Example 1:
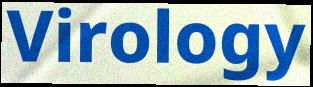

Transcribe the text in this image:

Virology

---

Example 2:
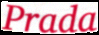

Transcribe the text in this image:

Prada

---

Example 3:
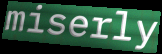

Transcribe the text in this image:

miserly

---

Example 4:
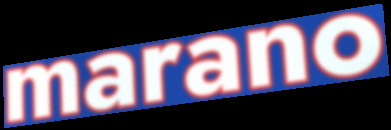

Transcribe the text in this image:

marano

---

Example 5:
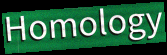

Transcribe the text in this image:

Homology